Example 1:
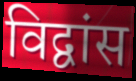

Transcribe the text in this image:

विद्वांस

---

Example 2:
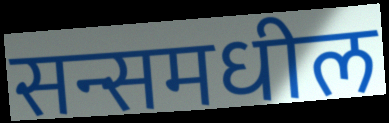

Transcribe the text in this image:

सन्समधील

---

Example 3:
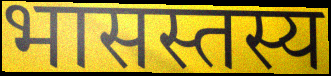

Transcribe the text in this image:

भासस्तस्य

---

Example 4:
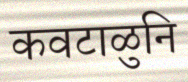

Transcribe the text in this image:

कवटाळुनि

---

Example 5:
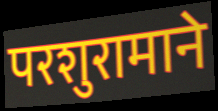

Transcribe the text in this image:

परशुरामाने